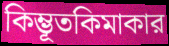
কিম্ভূতকিমাকার